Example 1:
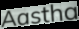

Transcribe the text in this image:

Aastha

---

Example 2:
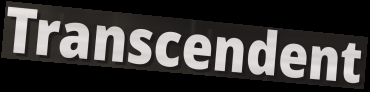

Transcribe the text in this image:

Transcendent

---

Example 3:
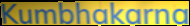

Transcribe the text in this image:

Kumbhakarna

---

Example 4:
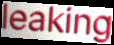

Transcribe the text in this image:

leaking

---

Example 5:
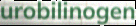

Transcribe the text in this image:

urobilinogen